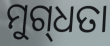
ମୁଗ୍‌ଧତା